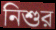
নিশুর